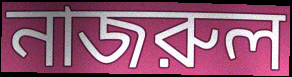
নাজৰুল